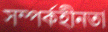
সম্পর্কহীনতা